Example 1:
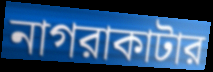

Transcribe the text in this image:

নাগরাকাটার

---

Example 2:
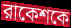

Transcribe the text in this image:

রাকেশকে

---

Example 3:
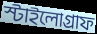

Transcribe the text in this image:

স্টাইলোগ্রাফ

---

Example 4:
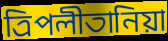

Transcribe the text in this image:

ত্রিপলীতানিয়া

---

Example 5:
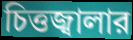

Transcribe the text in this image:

চিত্তজ্বালার